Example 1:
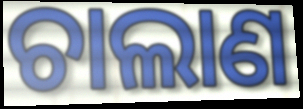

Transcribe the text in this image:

ଚାଲାଣ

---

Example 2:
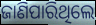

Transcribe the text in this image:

ଜାଣିପାରିଥିଲେ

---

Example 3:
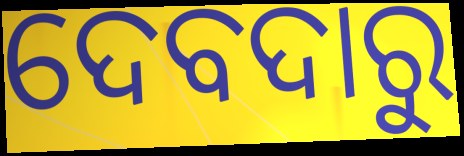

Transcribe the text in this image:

ଦେବଦାରୁ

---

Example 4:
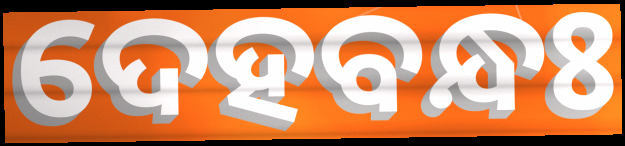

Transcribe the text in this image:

ଦେହବନ୍ଧଃ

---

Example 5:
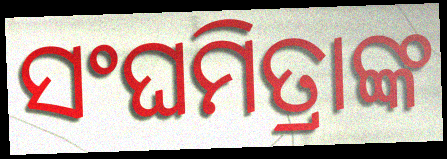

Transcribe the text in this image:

ସଂଘମିତ୍ରାଙ୍କ